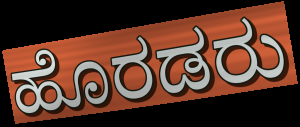
ಹೊರಡರು